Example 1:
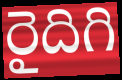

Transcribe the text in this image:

రైదిగి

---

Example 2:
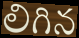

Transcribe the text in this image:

లిగిన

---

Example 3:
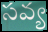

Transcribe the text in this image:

సవ్య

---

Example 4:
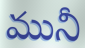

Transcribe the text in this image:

మునీ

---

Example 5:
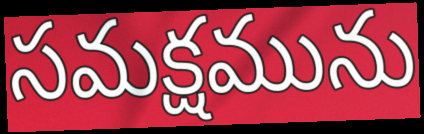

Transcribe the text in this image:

సమక్షమును